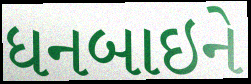
ધનબાઇને